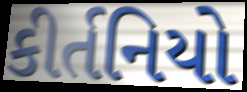
કીર્તનિયો